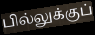
பில்லுக்குப்